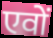
एवों